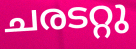
ചരടറ്റു